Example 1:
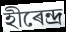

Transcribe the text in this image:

হীৰেন্দ্ৰ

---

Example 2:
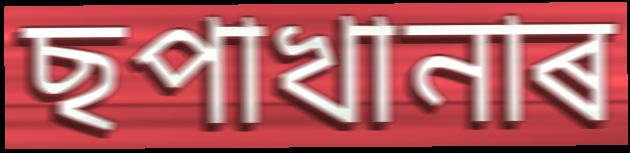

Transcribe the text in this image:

ছপাখানাৰ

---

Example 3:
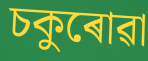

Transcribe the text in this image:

চকুৰোৱা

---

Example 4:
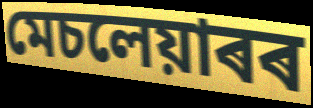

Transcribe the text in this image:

মেচলেয়াৰৰ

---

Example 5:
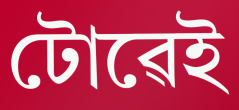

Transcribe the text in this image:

টোৱেই